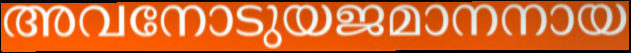
അവനോടുയജമാനനായ